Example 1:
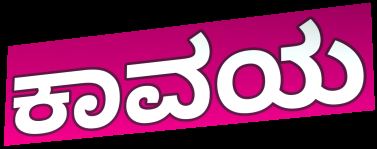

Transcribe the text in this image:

ಕಾವಯ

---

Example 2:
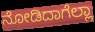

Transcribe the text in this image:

ನೋಡಿದಾಗೆಲ್ಲಾ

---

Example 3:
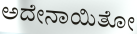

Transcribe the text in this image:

ಅದೇನಾಯಿತೋ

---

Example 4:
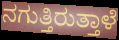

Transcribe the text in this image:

ನಗುತ್ತಿರುತ್ತಾಳೆ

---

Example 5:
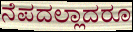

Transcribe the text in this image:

ನೆಪದಲ್ಲಾದರೂ